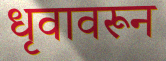
धृवावरून